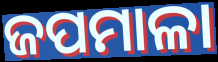
ଜପମାଳା